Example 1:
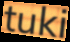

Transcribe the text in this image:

tuki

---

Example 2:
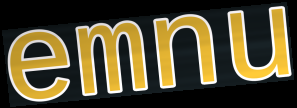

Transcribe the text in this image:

emnu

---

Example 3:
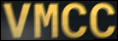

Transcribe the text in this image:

VMCC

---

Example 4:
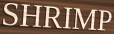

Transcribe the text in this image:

SHRIMP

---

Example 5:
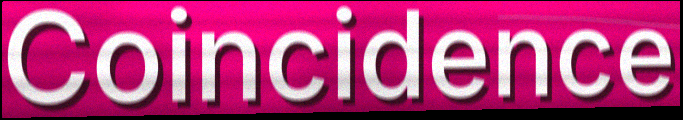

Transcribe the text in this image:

Coincidence